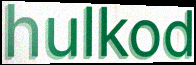
hulkod